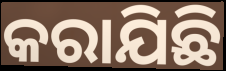
କରାଯିଛି